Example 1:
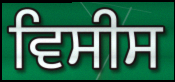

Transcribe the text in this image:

ਵਿਸੀਸ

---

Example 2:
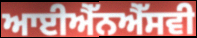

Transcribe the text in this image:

ਆਈਐੱਨਐੱਸਵੀ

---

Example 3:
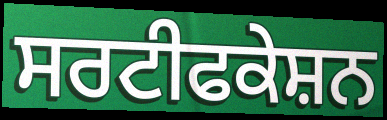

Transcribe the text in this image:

ਸਰਟੀਫਕੇਸ਼ਨ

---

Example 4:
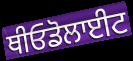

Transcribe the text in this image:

ਥੀਓਡੋਲਾਈਟ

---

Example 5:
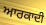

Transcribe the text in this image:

ਆਰਕਾਦੀ